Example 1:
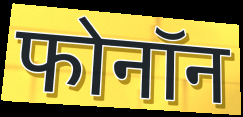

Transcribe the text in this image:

फोनॉन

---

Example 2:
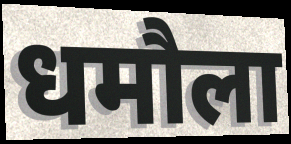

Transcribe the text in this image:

धमौला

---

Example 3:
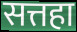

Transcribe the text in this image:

सत्तहा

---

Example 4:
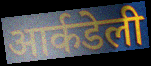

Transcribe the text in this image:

आर्कडेली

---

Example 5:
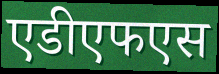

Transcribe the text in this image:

एडीएफएस